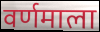
वर्णमाला